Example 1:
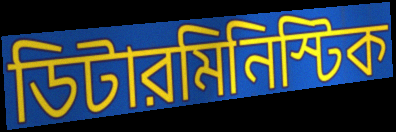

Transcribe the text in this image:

ডিটারমিনিস্টিক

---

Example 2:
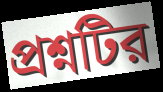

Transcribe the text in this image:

প্রশ্নটির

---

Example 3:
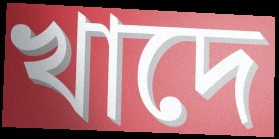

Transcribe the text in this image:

খাদে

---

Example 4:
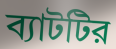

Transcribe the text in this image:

ব্যাটটির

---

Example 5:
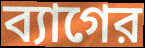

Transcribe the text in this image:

ব্যাগের